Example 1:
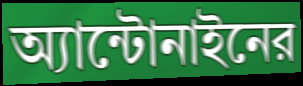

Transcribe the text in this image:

অ্যান্টোনাইনের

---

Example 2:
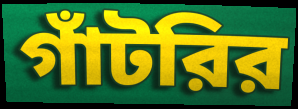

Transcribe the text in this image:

গাঁটরির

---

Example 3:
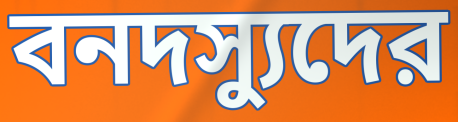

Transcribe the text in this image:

বনদস্যুদের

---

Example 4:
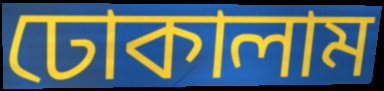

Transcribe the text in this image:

ঢোকালাম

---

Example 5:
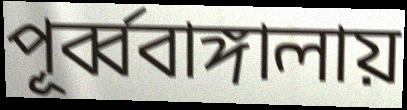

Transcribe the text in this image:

পূর্ব্ববাঙ্গালায়